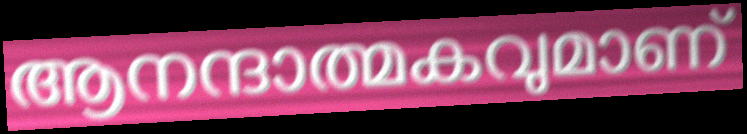
ആനന്ദാത്മകവുമാണ്